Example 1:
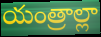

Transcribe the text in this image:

యంత్రాల్లా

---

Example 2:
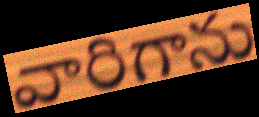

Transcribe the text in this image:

వారిగాను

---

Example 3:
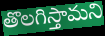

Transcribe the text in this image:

తొలగిస్తామని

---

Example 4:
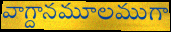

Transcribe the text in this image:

వాగ్దానమూలముగా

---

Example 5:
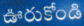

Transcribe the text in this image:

ఊరుకోండి